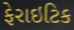
ફેરાઇટિક